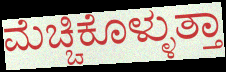
ಮೆಚ್ಚಿಕೊಳ್ಳುತ್ತಾ